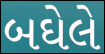
બઘેલે